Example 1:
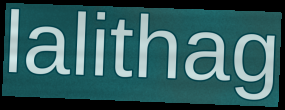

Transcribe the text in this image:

lalithag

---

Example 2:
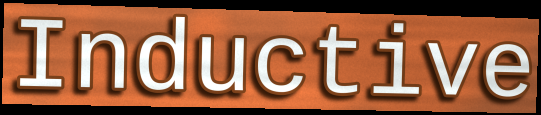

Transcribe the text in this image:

Inductive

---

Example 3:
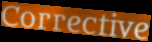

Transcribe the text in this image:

Corrective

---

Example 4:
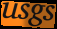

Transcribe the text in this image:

usgs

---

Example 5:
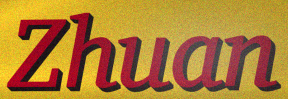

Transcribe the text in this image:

Zhuan